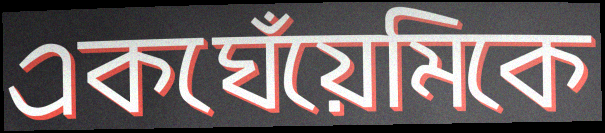
একঘেঁয়েমিকে